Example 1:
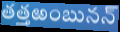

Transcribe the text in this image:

తత్తఱంబునన్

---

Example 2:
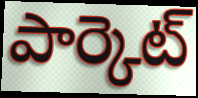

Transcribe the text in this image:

పార్కెట్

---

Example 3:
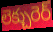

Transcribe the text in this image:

లెక్చురెర్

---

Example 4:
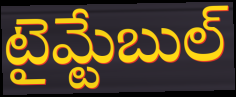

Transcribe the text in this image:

టైమ్టేబుల్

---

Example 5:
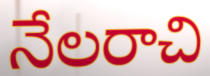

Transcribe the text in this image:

నేలరాచి